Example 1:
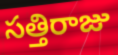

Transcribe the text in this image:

సత్తిరాజు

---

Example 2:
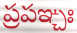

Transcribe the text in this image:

ప్రపఞ్చః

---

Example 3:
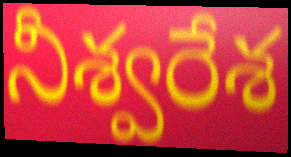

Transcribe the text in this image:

నీశ్వరేశ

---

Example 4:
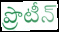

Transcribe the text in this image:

ప్రొటీన్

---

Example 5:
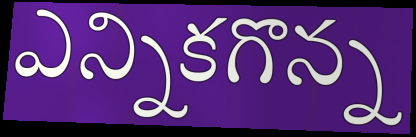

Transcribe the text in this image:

ఎన్నికగొన్న